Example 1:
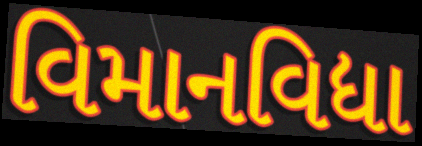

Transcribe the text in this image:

વિમાનવિદ્યા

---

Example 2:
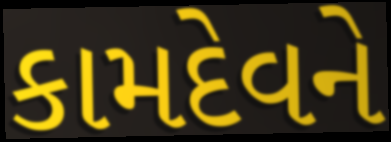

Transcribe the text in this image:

કામદેવને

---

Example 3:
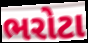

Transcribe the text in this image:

ભરોટા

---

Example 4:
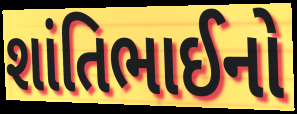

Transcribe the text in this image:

શાંતિભાઈનો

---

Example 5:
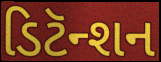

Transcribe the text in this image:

ડિટૅન્શન